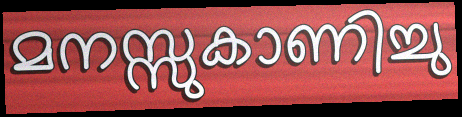
മനസ്സുകാണിച്ചു